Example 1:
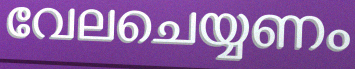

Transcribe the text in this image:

വേലചെയ്യണം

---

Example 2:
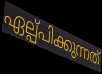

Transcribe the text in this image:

ഏല്പ്പിക്കുന്നത്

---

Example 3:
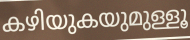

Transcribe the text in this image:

കഴിയുകയുമുള്ളൂ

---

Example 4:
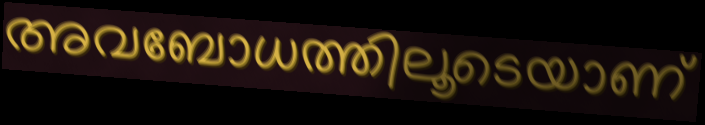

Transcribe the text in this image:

അവബോധത്തിലൂടെയാണ്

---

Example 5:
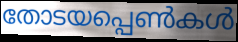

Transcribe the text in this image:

തോടയപ്പെൺകൾ